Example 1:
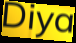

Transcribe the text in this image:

Diya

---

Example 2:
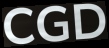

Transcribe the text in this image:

CGD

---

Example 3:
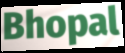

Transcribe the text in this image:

Bhopal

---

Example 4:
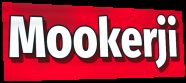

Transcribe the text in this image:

Mookerji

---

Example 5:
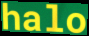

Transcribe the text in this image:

halo